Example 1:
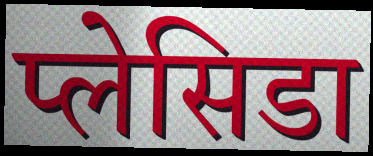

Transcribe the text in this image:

प्लेसिडा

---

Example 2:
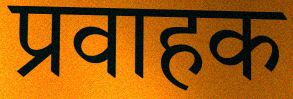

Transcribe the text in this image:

प्रवाहक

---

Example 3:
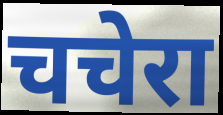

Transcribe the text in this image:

चचेरा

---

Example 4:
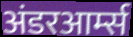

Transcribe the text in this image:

अंडरआर्म्‍स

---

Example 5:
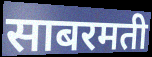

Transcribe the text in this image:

साबरमती